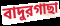
বাদুরগাছা